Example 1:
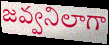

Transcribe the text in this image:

జవ్వనిలాగా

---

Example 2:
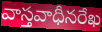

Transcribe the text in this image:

వాస్తవాధీనరేఖ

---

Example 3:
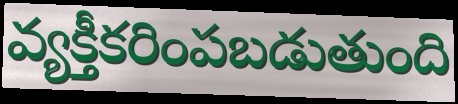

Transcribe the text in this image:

వ్యక్తీకరింపబడుతుంది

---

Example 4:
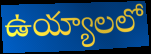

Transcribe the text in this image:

ఉయ్యాలలో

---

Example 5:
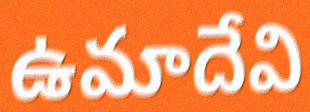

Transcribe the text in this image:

ఉమాదేవి